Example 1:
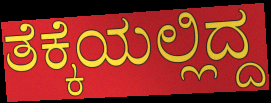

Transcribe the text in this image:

ತೆಕ್ಕೆಯಲ್ಲಿದ್ದ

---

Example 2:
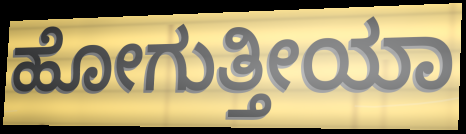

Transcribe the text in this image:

ಹೋಗುತ್ತೀಯಾ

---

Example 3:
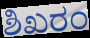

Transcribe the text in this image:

ಶಿಖರಂ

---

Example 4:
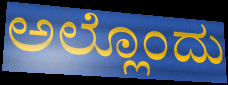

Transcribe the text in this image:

ಅಲ್ಲೊಂದು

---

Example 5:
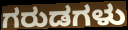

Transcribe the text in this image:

ಗರುಡಗಳು